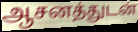
ஆசனத்துடன்